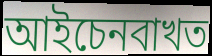
আইচেনবাখত